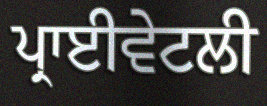
ਪ੍ਰਾਈਵੇਟਲੀ